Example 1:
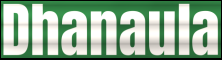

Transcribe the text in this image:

Dhanaula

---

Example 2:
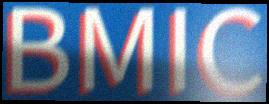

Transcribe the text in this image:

BMIC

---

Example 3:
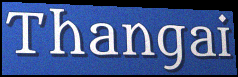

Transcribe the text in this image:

Thangai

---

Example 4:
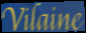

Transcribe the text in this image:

Vilaine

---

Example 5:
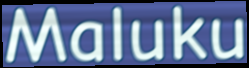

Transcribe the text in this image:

Maluku